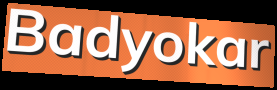
Badyokar